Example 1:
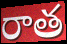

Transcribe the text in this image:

రాత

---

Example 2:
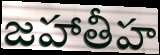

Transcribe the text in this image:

జహాతీహ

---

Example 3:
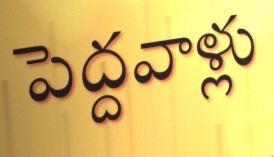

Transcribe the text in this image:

పెద్దవాళ్లు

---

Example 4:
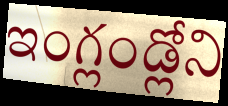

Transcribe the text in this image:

ఇంగ్లండ్లోని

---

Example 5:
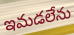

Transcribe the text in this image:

ఇమడలేను